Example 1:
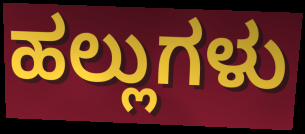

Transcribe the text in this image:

ಹಲ್ಲುಗಳು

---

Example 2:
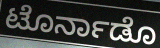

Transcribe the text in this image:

ಟೊರ್ನಾಡೊ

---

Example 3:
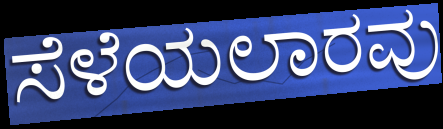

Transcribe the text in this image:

ಸೆಳೆಯಲಾರವು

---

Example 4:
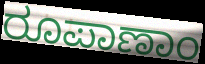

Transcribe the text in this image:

ರೂಪಾಣಾಂ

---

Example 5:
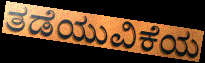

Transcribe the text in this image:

ತಡೆಯುವಿಕೆಯ